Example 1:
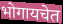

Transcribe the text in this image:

भोगायचेत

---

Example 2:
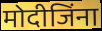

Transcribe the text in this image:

मोदीजिंना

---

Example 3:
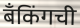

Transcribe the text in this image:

बँकिंगची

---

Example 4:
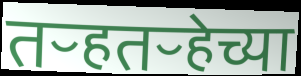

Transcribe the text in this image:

तऱ्हतऱ्हेच्या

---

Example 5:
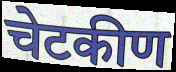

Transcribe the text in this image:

चेटकीण